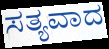
ಸತ್ಯವಾದ